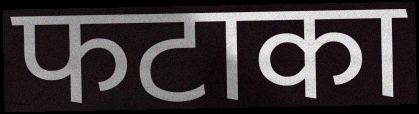
फटाका